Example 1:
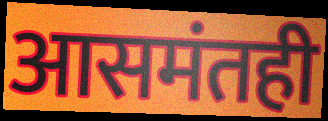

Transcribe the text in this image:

आसमंतही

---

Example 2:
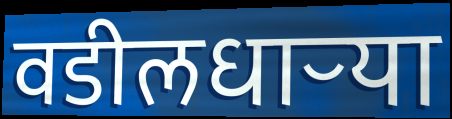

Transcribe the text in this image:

वडीलधाऱ्या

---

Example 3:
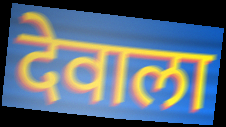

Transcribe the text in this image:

देवाला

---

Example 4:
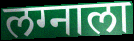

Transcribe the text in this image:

लग्नाला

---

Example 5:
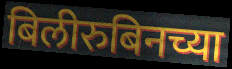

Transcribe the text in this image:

बिलीरुबिनच्या